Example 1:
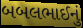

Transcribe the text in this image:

બબલભાઈનું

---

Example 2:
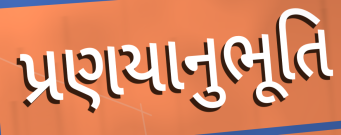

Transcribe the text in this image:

પ્રણયાનુભૂતિ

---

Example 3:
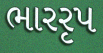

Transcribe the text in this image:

ભારરૃપ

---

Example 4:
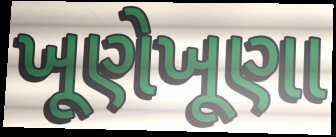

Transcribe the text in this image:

ખૂણેખૂણા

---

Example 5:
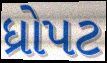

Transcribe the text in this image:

ધ્રોપટ